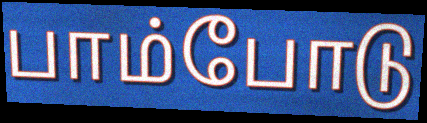
பாம்போடு